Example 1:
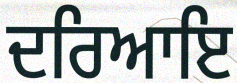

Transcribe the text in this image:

ਦਰਿਆਇ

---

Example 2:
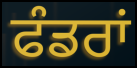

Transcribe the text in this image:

ਫੰਡਰਾਂ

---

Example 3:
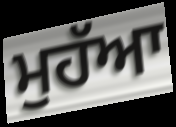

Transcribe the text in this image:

ਮੁਹੱਆ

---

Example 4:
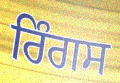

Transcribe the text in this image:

ਰਿੰਗਸ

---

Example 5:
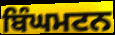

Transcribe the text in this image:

ਬਿੰਘਮਟਨ